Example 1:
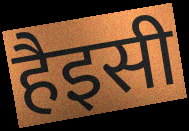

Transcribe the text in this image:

हैइसी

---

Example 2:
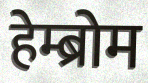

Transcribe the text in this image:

हेम्ब्रोम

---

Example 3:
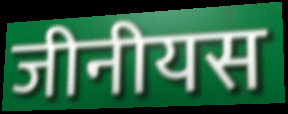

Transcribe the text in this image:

जीनीयस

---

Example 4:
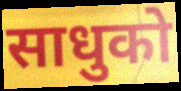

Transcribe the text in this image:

साधुको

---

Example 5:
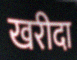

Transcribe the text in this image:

खरीदा